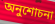
অনুশোচনা